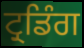
ਟ੍ਰਡਿੰਗ